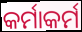
କର୍ମାକର୍ମ